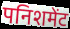
पनिशमेंट